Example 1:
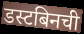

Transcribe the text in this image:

डस्टबिनची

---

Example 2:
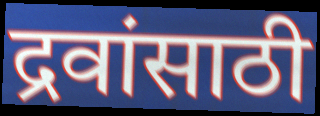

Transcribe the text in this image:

द्रवांसाठी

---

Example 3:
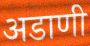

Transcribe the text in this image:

अडाणी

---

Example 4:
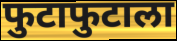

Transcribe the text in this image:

फुटाफुटाला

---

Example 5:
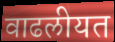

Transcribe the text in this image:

वाढलीयत